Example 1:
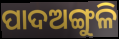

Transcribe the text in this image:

ପାଦଅଙ୍ଗୁଳି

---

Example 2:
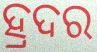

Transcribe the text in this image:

ହ୍ରଦର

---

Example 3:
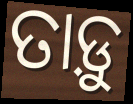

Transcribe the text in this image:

ତାଡ଼ୁ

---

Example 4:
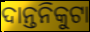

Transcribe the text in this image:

ଦାନ୍ତନିକୁଟା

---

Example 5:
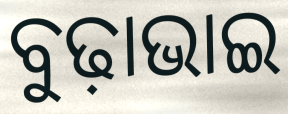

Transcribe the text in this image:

ବୁଢ଼ାଭାଇ